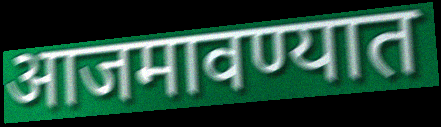
आजमावण्यात